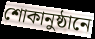
শোকানুষ্ঠানে